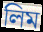
লিম